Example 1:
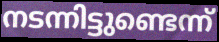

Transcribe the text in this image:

നടന്നിട്ടുണ്ടെന്ന്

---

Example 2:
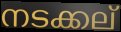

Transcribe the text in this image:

നടക്കല്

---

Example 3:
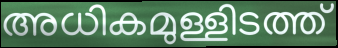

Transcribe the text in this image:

അധികമുള്ളിടത്ത്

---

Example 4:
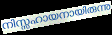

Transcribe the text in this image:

നിസ്സഹായനായിരുന്നു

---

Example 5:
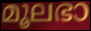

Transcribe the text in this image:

മൂലഭാ